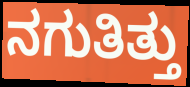
ನಗುತಿತ್ತು